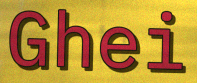
Ghei